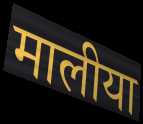
मालीया